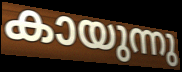
കായുന്നു